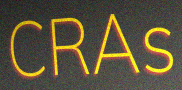
CRAs